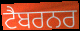
ਟੈਬਰਨਰ